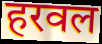
हरवल